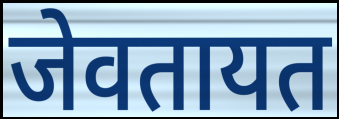
जेवतायत